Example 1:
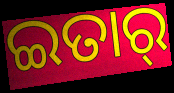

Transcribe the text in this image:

ଇତାର୍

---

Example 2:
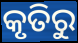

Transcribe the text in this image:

କୃତିରୁ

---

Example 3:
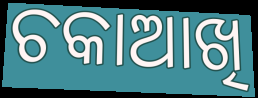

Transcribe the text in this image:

ଚକାଆଖି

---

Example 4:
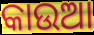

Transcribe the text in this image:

କାଉଆ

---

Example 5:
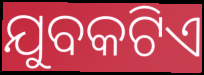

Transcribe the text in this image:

ଯୁବକଟିଏ